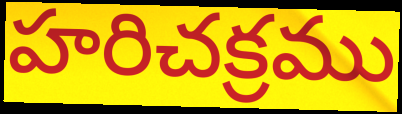
హరిచక్రము